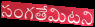
సంగతేమిటని